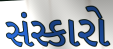
સંસ્કારો